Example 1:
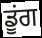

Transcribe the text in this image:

ਡੂਂਗ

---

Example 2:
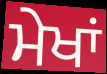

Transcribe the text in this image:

ਮੇਖਾਂ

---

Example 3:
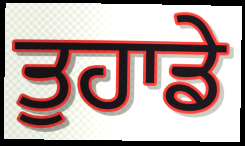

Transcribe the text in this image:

ਤੁਹਾਡੇ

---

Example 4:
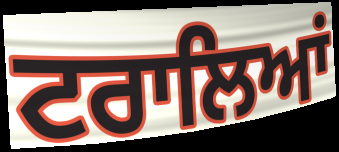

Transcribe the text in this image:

ਟਰਾਲਿਆਂ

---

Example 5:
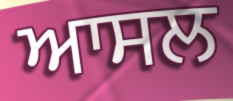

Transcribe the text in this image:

ਆਸਲ